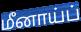
மீனாய்ப்